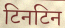
टिनटिन